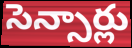
సెన్సార్లు